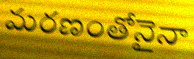
మరణంతోనైనా